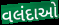
વલંદાઓ